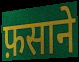
फ़साने